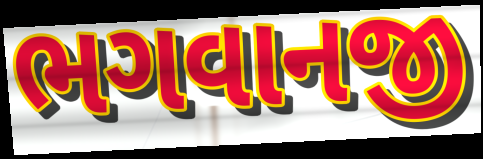
ભગવાનજી